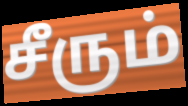
சீரும்